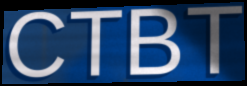
CTBT